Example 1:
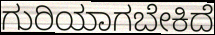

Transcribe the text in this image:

ಗುರಿಯಾಗಬೇಕಿದೆ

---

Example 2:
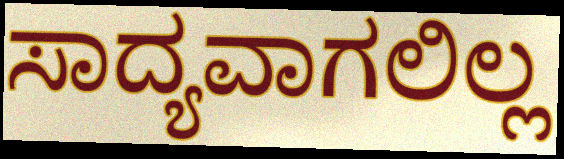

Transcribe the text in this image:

ಸಾದ್ಯವಾಗಲಿಲ್ಲ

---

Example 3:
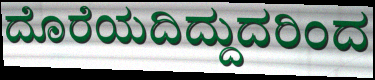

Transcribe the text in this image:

ದೊರೆಯದಿದ್ದುದರಿಂದ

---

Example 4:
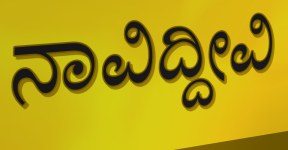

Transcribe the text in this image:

ನಾವಿದ್ದೀವಿ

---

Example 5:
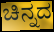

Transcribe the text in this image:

ಚಿನ್ನದ